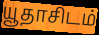
யூதாசிடம்